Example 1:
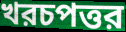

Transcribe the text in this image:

খরচপত্তর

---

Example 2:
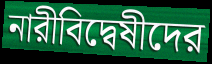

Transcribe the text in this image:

নারীবিদ্বেষীদের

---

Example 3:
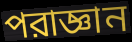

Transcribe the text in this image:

পরাজ্ঞান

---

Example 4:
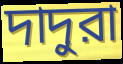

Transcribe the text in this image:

দাদুরা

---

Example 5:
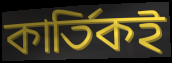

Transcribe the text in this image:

কার্তিকই